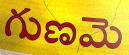
గుణమె